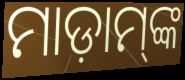
ମାଡ଼ାମ୍‌ଙ୍କ